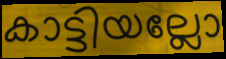
കാട്ടിയല്ലോ